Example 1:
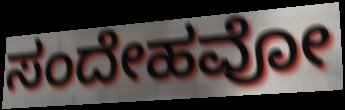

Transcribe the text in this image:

ಸಂದೇಹವೋ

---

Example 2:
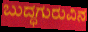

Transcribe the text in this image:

ಬುದ್ಧಗುರುವಿನ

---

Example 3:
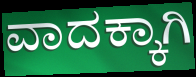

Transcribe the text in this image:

ವಾದಕ್ಕಾಗಿ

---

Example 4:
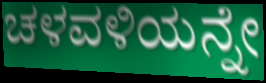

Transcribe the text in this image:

ಚಳವಳಿಯನ್ನೇ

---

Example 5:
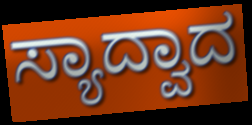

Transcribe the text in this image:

ಸ್ಯಾದ್ವಾದ